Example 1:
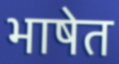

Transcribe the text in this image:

भाषेत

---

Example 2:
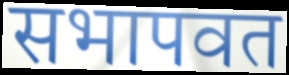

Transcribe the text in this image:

सभापवत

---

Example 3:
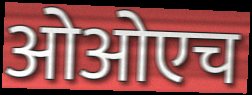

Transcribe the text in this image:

ओओएच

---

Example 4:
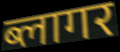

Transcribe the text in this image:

ब्लागर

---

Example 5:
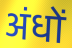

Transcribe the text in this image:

अंधों